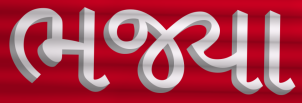
ભજ્યા